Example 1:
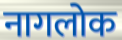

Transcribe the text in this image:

नागलोक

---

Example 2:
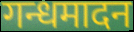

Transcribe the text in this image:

गन्धमादन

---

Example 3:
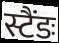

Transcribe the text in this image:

स्टैंडः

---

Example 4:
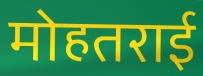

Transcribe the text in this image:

मोहतराई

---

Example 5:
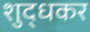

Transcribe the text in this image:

शुद्धकर